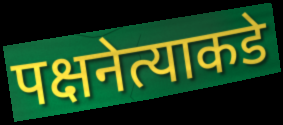
पक्षनेत्याकडे